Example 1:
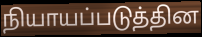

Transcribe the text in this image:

நியாயப்படுத்தின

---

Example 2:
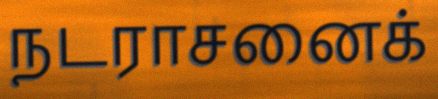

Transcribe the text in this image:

நடராசனைக்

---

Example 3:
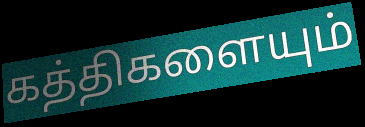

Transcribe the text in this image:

கத்திகளையும்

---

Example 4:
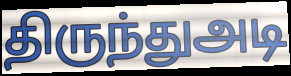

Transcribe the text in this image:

திருந்துஅடி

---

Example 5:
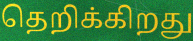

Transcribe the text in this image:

தெறிக்கிறது